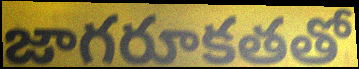
జాగరూకతతో